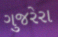
ગુજરેરા